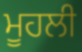
ਮੂਹਲੀ